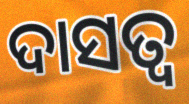
ଦାସତ୍ଵ